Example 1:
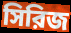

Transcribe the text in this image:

সিরিজ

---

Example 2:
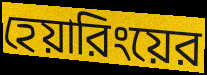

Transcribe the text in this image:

হেয়ারিংয়ের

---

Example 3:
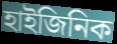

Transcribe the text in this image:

হাইজিনিক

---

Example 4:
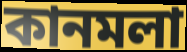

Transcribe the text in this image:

কানমলা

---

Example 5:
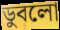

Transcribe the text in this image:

ডুবলো